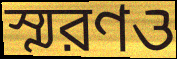
স্মরণও